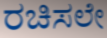
ರಚಿಸಲೇ